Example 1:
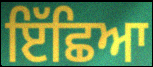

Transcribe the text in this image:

ਇੱਛਿਆ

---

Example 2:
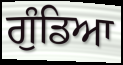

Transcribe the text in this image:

ਗੁੰਡਿਆ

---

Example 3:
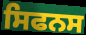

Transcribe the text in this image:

ਸਿਫਨਸ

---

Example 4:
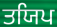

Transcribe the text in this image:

ਤਯਿਪ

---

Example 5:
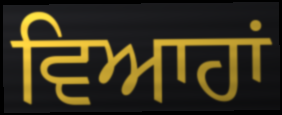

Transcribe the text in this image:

ਵਿਆਹਾਂ